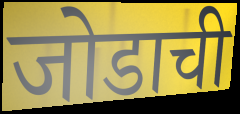
जोडाची